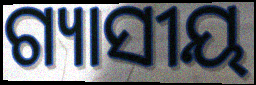
ଗ୍ୟାସୀୟ